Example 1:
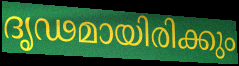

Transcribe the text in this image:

ദൃഢമായിരിക്കും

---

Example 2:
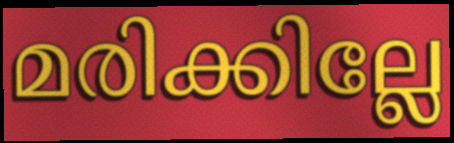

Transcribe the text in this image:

മരിക്കില്ലേ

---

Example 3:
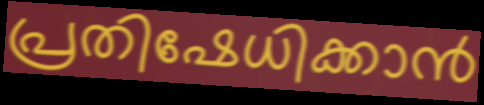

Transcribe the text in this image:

പ്രതിഷേധിക്കാൻ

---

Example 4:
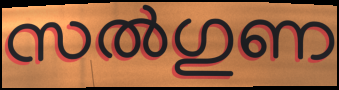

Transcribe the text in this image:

സൽഗുണ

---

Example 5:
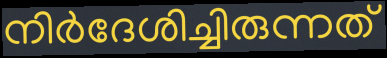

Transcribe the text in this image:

നിർദേശിച്ചിരുന്നത്